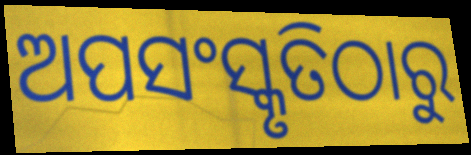
ଅପସଂସ୍କୃତିଠାରୁ